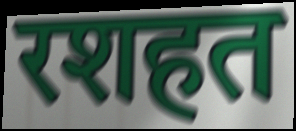
रशहत